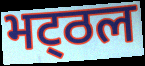
भट्‌ठल